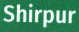
Shirpur